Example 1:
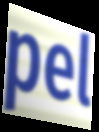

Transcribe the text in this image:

pel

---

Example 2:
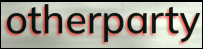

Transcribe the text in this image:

otherparty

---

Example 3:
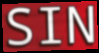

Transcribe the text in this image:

SIN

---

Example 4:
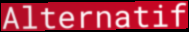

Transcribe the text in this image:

Alternatif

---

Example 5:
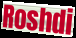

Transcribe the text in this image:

Roshdi